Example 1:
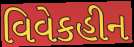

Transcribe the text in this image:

વિવેકહીન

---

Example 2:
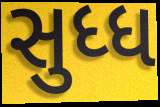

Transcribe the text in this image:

સુધ્ધ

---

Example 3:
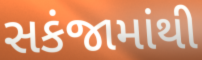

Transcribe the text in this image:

સકંજામાંથી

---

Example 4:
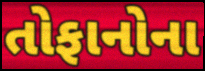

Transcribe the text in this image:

તોફાનોના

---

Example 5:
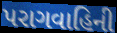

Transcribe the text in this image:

પરાગવાહિની